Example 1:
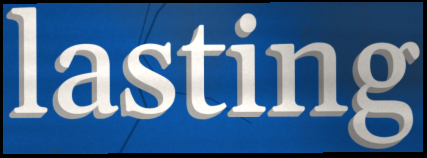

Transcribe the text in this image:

lasting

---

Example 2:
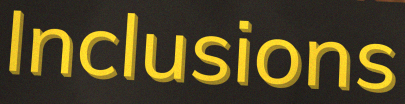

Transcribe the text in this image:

Inclusions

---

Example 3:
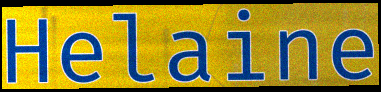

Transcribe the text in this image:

Helaine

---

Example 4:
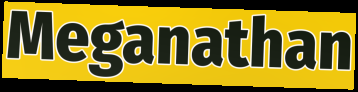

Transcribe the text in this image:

Meganathan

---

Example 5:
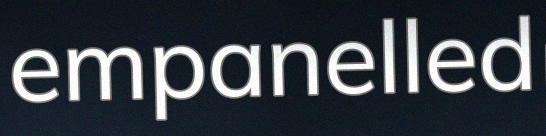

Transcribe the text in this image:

empanelled